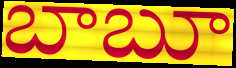
బాబూ